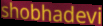
shobhadevi